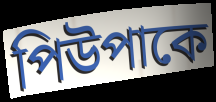
পিউপাকে